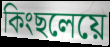
কিংছলেয়ে